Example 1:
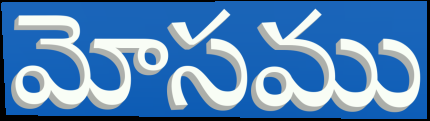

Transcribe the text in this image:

మోసము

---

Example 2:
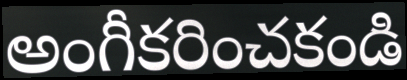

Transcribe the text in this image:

అంగీకరించకండి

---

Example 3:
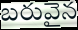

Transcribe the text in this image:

బరువైన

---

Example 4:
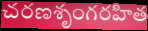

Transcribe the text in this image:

చరణశృంగరహిత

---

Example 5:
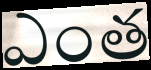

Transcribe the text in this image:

ఎంత